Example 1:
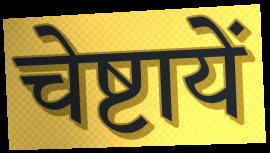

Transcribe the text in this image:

चेष्टायें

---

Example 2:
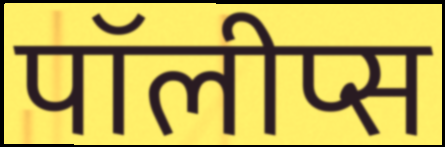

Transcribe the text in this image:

पॉलीप्स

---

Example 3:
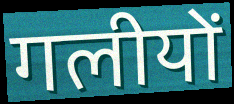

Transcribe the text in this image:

गलीयों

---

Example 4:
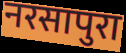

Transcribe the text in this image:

नरसापुरा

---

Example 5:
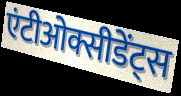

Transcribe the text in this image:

एंटीओक्सीडेंट्स